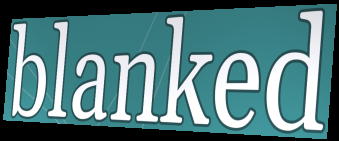
blanked